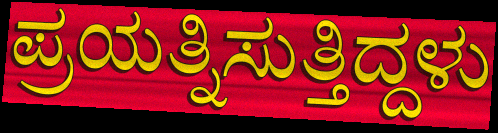
ಪ್ರಯತ್ನಿಸುತ್ತಿದ್ದಳು